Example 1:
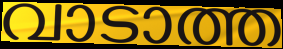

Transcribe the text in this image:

വാടാത്ത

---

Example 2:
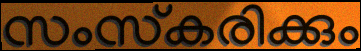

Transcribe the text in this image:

സംസ്‌കരിക്കും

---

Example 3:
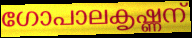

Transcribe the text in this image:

ഗോപാലകൃഷ്ണന്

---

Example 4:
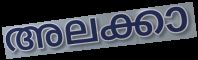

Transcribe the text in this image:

അലക്കാ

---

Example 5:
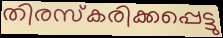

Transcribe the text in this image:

തിരസ്കരിക്കപ്പെട്ടു